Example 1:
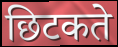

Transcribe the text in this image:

छिटकते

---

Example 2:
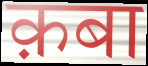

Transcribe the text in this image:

क़बा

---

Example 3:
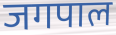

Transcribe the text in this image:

जगपाल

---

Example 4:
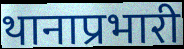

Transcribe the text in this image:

थानाप्रभारी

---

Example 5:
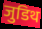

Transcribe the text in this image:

जुडिथ